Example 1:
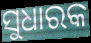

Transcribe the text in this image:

ସୁଧାରକ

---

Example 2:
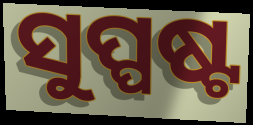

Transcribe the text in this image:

ସୁପ୍ପଷ୍ଟ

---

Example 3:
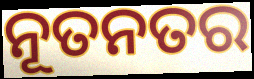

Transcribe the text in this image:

ନୂତନତର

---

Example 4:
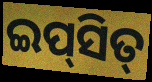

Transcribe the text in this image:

ଇପ୍‌ସିତ୍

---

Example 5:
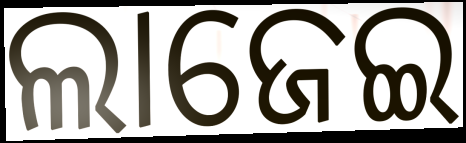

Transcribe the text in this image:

ଲାଜେଇ